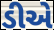
ડીએ